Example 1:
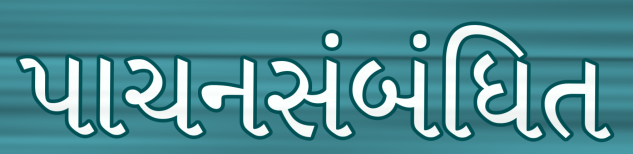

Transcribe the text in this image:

પાચનસંબંધિત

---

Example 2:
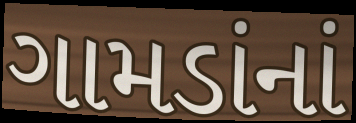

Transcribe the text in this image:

ગામડાંનાં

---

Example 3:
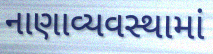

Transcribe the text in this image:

નાણાવ્યવસ્થામાં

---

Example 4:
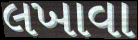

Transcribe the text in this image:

લખાવા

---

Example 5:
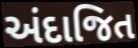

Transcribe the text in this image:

અંદાજિત